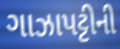
ગાઝાપટ્ટીની